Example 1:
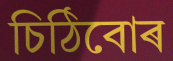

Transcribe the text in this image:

চিঠিবোৰ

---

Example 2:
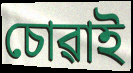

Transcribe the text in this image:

চোৱাই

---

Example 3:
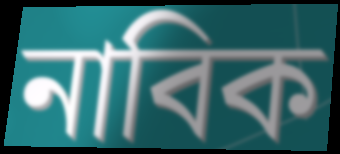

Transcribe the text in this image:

নাবিক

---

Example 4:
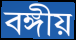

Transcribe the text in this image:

বঙ্গীয়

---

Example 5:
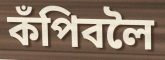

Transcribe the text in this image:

কঁপিবলৈ